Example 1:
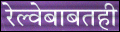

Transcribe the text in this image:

रेल्वेबाबतही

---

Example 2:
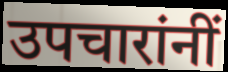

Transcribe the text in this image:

उपचारांनीं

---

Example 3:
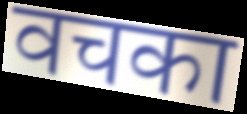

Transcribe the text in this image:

वचका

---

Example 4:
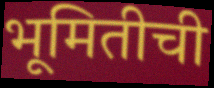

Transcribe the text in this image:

भूमितीची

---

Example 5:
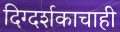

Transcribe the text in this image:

दिग्दर्शकाचाही